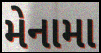
મેનામા